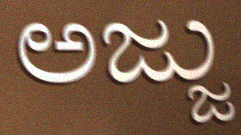
ಅಜ್ಜು